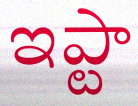
ఇప్టా